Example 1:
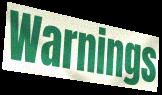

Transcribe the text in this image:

Warnings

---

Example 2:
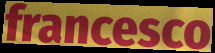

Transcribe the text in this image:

francesco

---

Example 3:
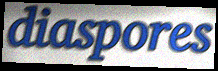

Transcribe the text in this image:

diaspores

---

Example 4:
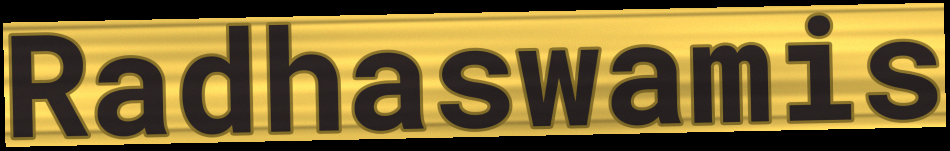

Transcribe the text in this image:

Radhaswamis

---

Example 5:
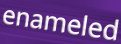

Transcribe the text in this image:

enameled